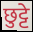
छुट्टे